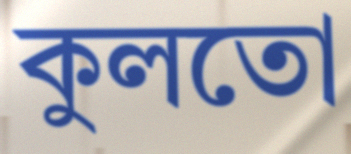
কুলতো